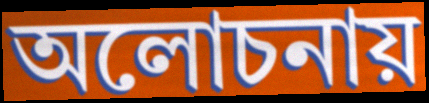
অলোচনায়